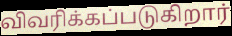
விவரிக்கப்படுகிறார்